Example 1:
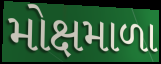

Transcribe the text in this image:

મોક્ષમાળા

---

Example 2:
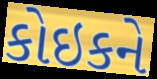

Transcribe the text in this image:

કોઇકને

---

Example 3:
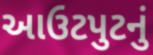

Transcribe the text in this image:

આઉટપુટનું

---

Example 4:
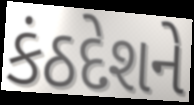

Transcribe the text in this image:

કંઠદેશને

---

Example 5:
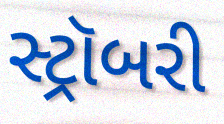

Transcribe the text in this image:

સ્ટ્રૉબરી